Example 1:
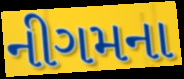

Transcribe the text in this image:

નીગમના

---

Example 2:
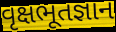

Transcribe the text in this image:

વૃક્ષભૂતજ્ઞાન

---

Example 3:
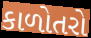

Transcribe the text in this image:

કાળોતરો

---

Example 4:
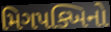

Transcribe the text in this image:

મિગપક્ખિનો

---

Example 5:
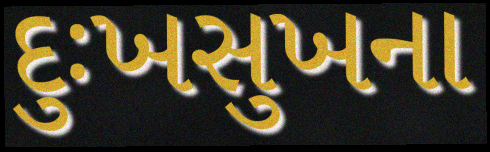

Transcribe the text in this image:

દુઃખસુખના